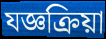
যজ্ঞক্রিয়া